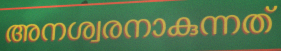
അനശ്വരനാകുന്നത്